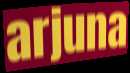
arjuna